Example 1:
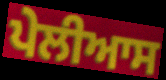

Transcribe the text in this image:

ਪੇਲੀਆਸ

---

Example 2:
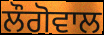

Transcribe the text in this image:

ਲੌਗੋਵਾਲ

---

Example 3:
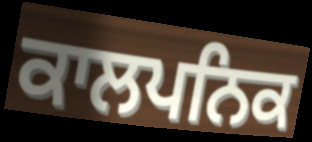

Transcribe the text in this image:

ਕਾਲਪਨਿਕ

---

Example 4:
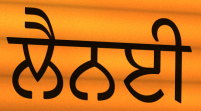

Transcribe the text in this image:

ਲੈਨਈ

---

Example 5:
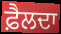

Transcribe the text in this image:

ਫ਼ੈਲਦਾ